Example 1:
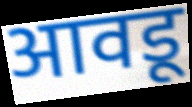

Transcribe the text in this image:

आवडू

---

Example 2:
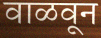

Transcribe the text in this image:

वाळवून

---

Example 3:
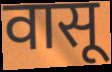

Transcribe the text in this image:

वासू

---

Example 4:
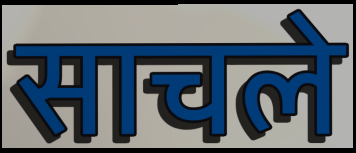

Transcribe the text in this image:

साचले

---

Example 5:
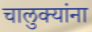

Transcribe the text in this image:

चालुक्यांना